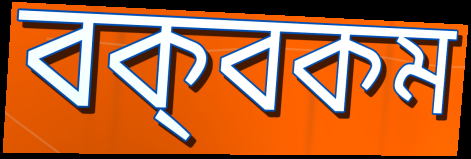
বক্‌বকম